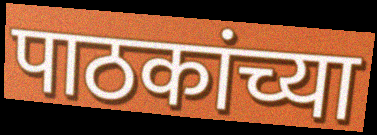
पाठकांच्या